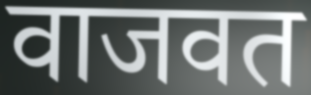
वाजवत